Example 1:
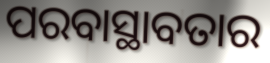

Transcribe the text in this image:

ପରବାସ୍ଥାବତାର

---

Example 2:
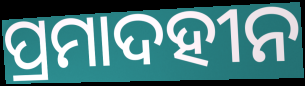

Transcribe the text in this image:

ପ୍ରମାଦହୀନ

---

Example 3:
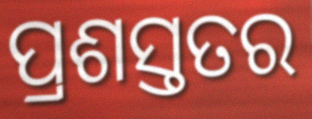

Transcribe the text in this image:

ପ୍ରଶସ୍ତତର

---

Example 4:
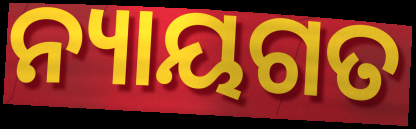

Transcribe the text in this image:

ନ୍ୟାୟଗତ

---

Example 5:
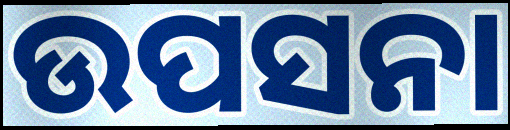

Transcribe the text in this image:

ଉପସନା